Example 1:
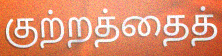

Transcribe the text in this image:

குற்றத்தைத்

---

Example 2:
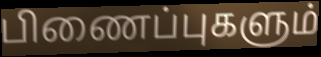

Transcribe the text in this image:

பிணைப்புகளும்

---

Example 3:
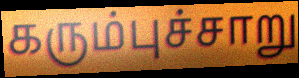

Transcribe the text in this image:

கரும்புச்சாறு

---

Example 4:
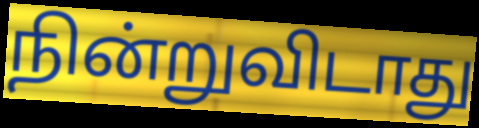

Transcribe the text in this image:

நின்றுவிடாது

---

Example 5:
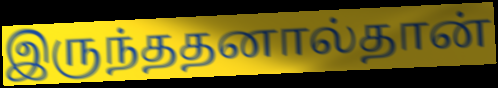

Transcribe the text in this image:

இருந்ததனால்தான்